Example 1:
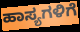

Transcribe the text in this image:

ಹಾಸ್ಯಗಳಿಗೆ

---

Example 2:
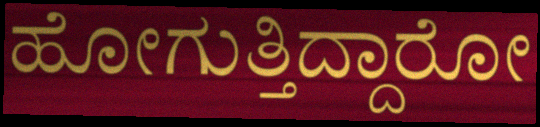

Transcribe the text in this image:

ಹೋಗುತ್ತಿದ್ದಾರೋ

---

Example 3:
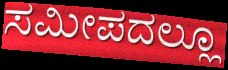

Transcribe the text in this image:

ಸಮೀಪದಲ್ಲೂ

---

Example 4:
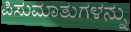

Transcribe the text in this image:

ಪಿಸುಮಾತುಗಳನ್ನು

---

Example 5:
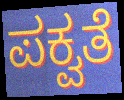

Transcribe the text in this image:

ಪಕ್ವತೆ